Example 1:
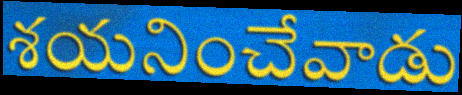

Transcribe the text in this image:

శయనించేవాడు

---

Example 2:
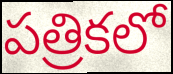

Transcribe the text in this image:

పత్రికలో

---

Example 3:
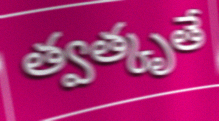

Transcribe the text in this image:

త్వత్కృతే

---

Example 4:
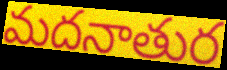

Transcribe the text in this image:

మదనాతుర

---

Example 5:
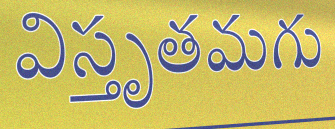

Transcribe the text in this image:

విస్తృతమగు